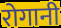
रोगानी